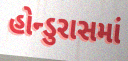
હોન્ડુરાસમાં